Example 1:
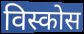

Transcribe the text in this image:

विस्कोस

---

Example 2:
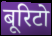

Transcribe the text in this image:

बूरिटो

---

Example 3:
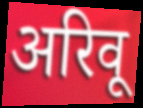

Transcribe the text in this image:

अरिवू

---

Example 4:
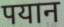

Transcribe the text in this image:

पयान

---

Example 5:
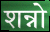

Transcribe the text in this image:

शन्नो